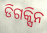
ଡିଗକ୍ସିନ